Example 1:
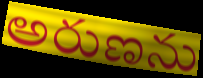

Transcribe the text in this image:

అరుణను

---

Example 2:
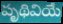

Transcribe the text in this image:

పృథివియే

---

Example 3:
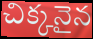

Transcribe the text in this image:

చిక్కనైన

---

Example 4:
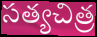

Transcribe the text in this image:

సత్యచిత్ర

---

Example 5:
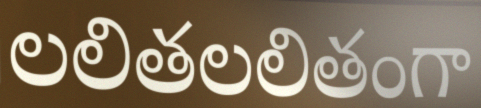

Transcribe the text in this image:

లలితలలితంగా